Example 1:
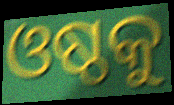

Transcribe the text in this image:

ଓଷ୍ଠକୁ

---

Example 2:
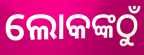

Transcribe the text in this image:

ଲୋକଙ୍କଠୁଁ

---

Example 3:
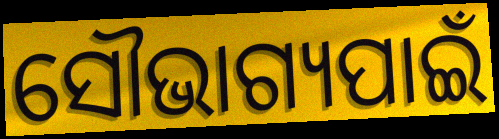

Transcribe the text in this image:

ସୌଭାଗ୍ୟପାଇଁ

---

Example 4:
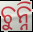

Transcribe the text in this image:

ଚୁନ୍ନି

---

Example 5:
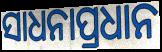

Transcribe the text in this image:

ସାଧନାପ୍ରଧାନ